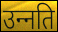
उन्‍नति